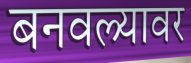
बनवल्यावर